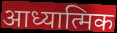
आध्यात्मिक